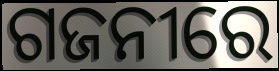
ଗଜନୀରେ